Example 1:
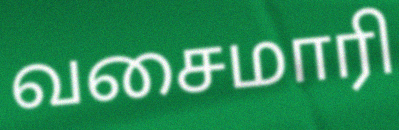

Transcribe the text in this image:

வசைமாரி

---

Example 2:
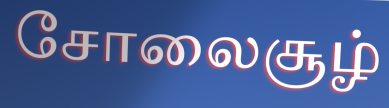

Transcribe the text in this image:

சோலைசூழ்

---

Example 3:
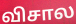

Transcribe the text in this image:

விசால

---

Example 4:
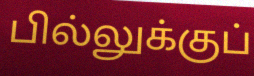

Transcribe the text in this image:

பில்லுக்குப்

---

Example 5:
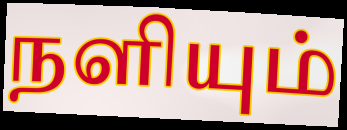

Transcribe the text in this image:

நளியும்